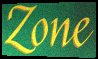
Zone